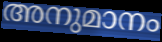
അനുമാനം